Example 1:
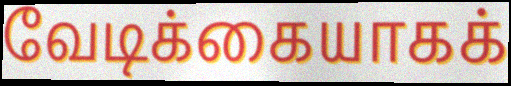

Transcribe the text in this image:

வேடிக்கையாகக்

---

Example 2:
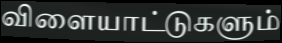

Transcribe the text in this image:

விளையாட்டுகளும்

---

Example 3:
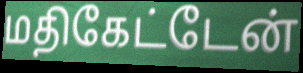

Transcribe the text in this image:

மதிகேட்டேன்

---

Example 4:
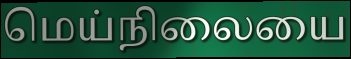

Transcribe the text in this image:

மெய்நிலையை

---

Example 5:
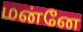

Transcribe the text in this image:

மன்னே